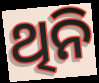
ଥିନି